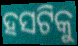
ହସଟିକୁ